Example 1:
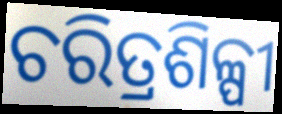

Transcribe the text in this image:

ଚରିତ୍ରଶିଳ୍ପୀ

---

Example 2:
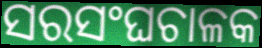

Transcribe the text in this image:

ସରସଂଘଚାଳକ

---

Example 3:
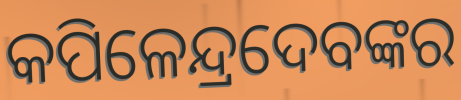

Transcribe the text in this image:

କପିଳେନ୍ଦ୍ରଦେବଙ୍କର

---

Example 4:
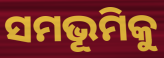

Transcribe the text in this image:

ସମଭୂମିକୁ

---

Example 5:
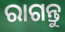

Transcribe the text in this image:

ରାଗନ୍ତୁ